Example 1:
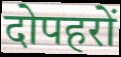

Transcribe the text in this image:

दोपहरों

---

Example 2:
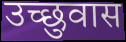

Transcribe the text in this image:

उच्छुवास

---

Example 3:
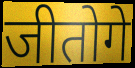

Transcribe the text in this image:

जीतोगे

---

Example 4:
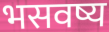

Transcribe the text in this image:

भसवष्य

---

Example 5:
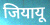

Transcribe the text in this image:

जियायू